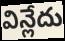
విన్లేదు